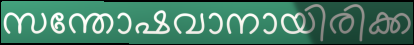
സന്തോഷവാനായിരിക്ക